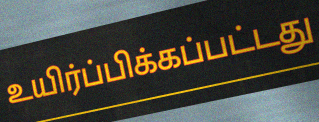
உயிர்ப்பிக்கப்பட்டது